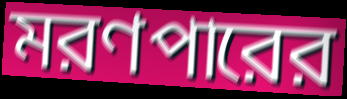
মরণপারের